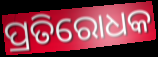
ପ୍ରତିରୋଧକ